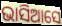
ଭାସିଆସେ